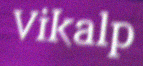
Vikalp